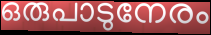
ഒരുപാടുനേരം